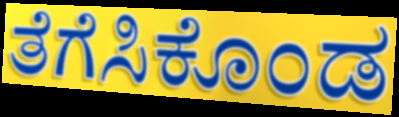
ತೆಗೆಸಿಕೊಂಡ